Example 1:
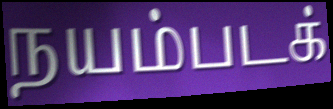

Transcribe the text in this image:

நயம்படக்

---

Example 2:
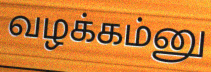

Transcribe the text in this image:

வழக்கம்னு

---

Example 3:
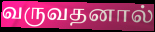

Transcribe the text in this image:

வருவதனால்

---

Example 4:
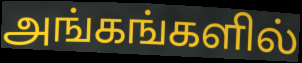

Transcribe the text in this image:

அங்கங்களில்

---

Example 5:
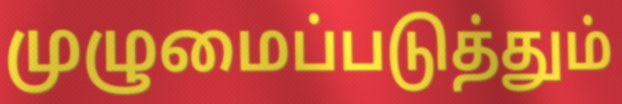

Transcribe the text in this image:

முழுமைப்படுத்தும்